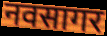
नवसागर